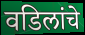
वडिलांचे